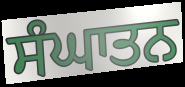
ਸੰਘਾਤਨ